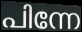
പിന്നേ